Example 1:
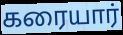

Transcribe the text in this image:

கரையார்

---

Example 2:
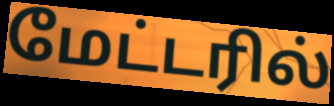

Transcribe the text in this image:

மேட்டரில்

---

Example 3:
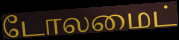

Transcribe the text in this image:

டோலமைட்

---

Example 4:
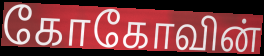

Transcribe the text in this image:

கோகோவின்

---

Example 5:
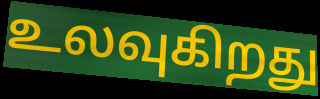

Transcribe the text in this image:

உலவுகிறது